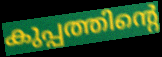
കുപ്പത്തിന്റെ